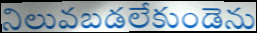
నిలువబడలేకుండెను